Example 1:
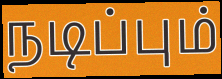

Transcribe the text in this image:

நடிப்பும்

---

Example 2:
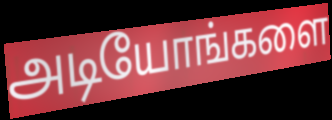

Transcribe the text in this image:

அடியோங்களை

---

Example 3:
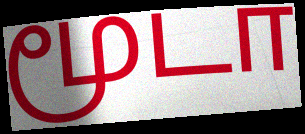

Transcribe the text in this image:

மூடா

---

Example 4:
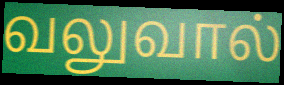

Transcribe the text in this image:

வலுவால்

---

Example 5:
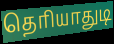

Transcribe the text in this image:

தெரியாதுடி